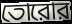
তোরোর